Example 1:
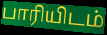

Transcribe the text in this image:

பாரியிடம்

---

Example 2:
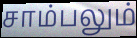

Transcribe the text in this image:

சாம்பலும்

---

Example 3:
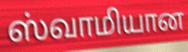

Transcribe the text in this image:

ஸ்வாமியான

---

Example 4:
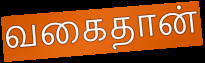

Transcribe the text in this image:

வகைதான்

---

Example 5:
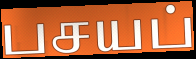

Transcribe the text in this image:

பசயப்